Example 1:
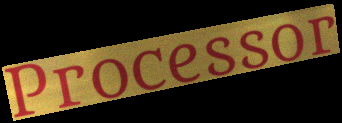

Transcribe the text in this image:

Processor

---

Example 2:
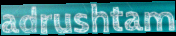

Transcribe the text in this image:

adrushtam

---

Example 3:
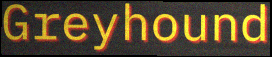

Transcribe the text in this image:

Greyhound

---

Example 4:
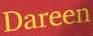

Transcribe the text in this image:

Dareen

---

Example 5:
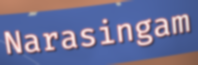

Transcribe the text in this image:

Narasingam